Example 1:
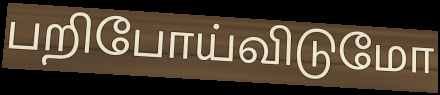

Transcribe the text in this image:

பறிபோய்விடுமோ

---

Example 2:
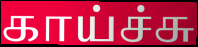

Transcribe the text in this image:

காய்ச்சு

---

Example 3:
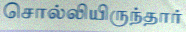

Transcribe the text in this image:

சொல்லியிருந்தார்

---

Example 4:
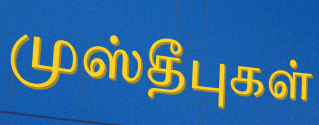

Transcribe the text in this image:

முஸ்தீபுகள்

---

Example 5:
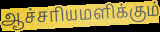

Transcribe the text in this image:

ஆச்சரியமளிக்கும்